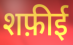
शफ़ीई